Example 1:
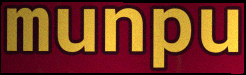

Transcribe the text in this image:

munpu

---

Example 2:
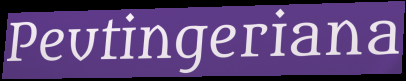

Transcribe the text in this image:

Peutingeriana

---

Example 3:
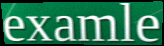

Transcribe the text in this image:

examle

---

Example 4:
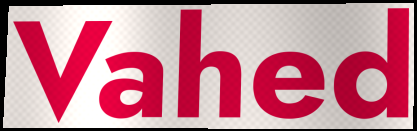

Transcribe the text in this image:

Vahed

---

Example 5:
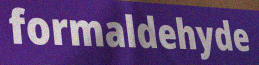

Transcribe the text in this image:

formaldehyde